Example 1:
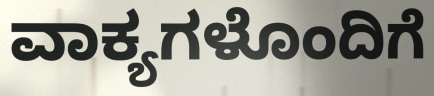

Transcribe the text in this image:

ವಾಕ್ಯಗಳೊಂದಿಗೆ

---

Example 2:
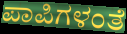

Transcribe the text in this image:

ಪಾಪಿಗಳಂತೆ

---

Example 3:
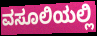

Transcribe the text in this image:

ವಸೂಲಿಯಲ್ಲಿ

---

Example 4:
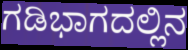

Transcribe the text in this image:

ಗಡಿಭಾಗದಲ್ಲಿನ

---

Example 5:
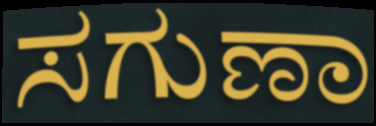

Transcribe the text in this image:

ಸಗುಣಾ